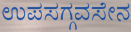
ಉಪಸಗ್ಗವಸೇನ